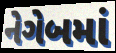
નેગેબમાં